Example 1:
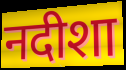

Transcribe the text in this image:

नदीशा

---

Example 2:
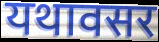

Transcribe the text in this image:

यथावसर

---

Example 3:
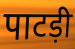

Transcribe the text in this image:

पाटड़ी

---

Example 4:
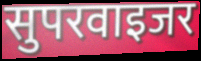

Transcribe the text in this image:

सुपरवाइजर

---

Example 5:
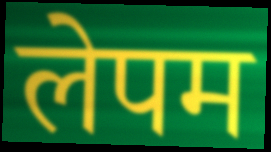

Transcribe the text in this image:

लेपम